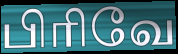
பிரிவே